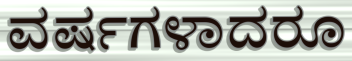
ವರ್ಷಗಳಾದರೂ